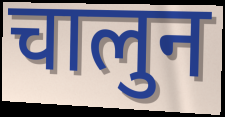
चालुन